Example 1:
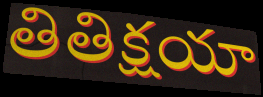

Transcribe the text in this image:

తితిక్షయా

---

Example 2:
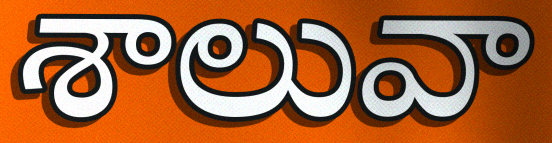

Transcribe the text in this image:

శాలువా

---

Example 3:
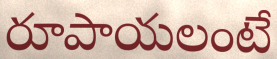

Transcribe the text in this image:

రూపాయలంటే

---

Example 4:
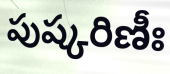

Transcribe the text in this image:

పుష్కరిణీః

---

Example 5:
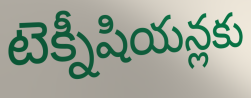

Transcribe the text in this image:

టెక్నీషియన్లకు